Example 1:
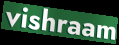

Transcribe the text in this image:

vishraam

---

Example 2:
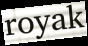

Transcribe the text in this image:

royak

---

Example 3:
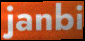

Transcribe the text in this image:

janbi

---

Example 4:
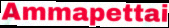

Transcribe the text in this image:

Ammapettai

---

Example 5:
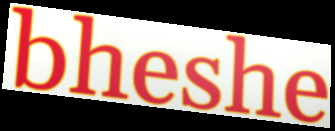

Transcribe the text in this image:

bheshe